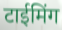
टाईमिंग